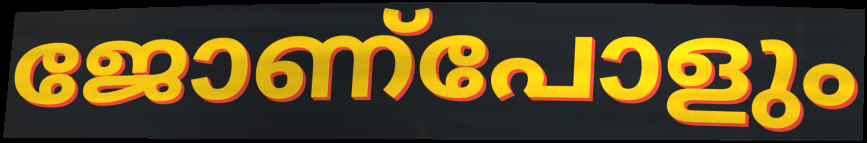
ജോണ്പോളും